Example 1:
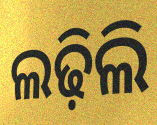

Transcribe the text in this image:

ଲଢ଼ିଲି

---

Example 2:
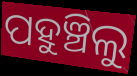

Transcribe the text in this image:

ପହୁଞ୍ଚିଲୁ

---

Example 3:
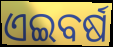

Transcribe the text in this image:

ଏଇବର୍ଷ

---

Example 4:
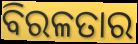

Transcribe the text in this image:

ବିରଳତାର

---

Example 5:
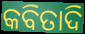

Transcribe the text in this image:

କବିତାଦି